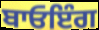
ਬਾਓਇੰਗ